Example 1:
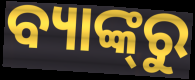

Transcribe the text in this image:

ବ୍ୟାଙ୍କ୍‌ରୁ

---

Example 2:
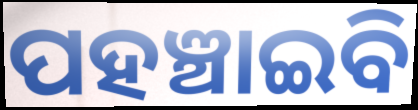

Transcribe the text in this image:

ପହଞ୍ଚାଇବି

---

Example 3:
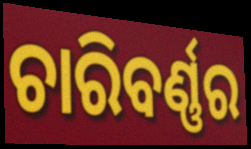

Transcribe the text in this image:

ଚାରିବର୍ଣ୍ଣର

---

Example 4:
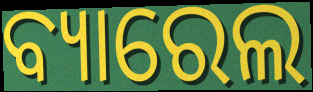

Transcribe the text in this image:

ବ୍ୟାରେଲ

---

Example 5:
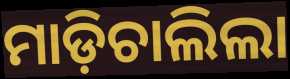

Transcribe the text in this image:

ମାଡ଼ିଚାଲିଲା